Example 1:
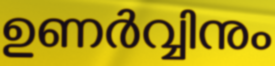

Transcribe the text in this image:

ഉണർവ്വിനും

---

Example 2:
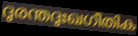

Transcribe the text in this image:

ദുരന്തദുഃഖഗീതിക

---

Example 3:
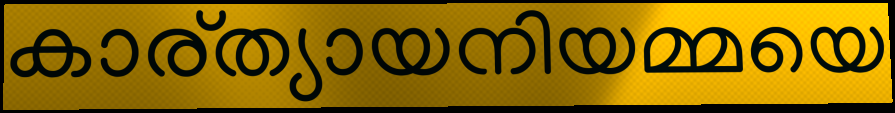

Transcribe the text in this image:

കാര്ത്യായനിയമ്മയെ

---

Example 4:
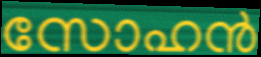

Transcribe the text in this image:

സോഹൻ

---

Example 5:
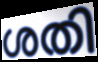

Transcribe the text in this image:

ശതി